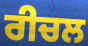
ਰੀਚਲ